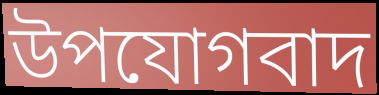
উপযোগবাদ